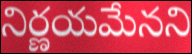
నిర్ణయమేనని